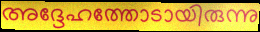
അദ്ദേഹത്തോടായിരുന്നു